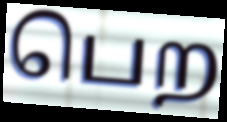
பெற